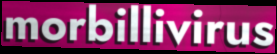
morbillivirus